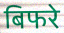
बिफरे